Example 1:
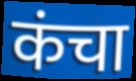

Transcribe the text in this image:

कंचा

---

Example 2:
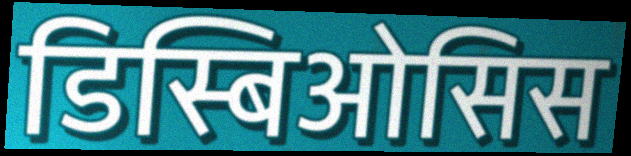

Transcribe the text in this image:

डिस्बिओसिस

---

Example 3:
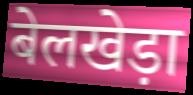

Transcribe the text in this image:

बेलखेड़ा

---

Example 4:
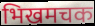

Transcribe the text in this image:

भिखमचक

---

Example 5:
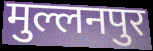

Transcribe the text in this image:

मुल्लनपुर